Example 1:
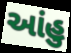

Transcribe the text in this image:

આંહુ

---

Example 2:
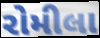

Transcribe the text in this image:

રોમીલા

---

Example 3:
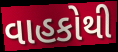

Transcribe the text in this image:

વાહકોથી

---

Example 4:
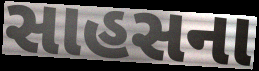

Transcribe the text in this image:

સાહસના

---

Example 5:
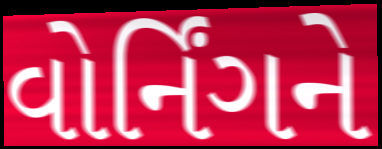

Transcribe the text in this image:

વોર્નિંગને